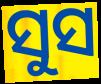
ସୁସ